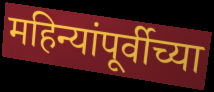
महिन्यांपूर्वीच्या